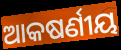
ଆକଷର୍ଣୀୟ